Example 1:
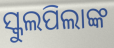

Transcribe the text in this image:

ସ୍କୁଲପିଲାଙ୍କ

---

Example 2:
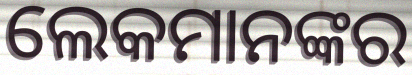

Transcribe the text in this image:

ଲେକମାନଙ୍କର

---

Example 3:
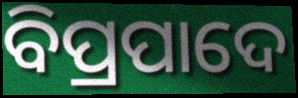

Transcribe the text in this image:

ବିପ୍ରପାଦେ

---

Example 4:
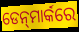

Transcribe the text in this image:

ଡେନ୍‍ମାର୍କରେ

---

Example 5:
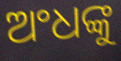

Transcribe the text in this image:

ଅଂଧଙ୍କୁ